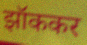
झॉककर